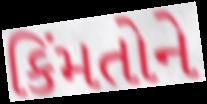
કિંમતોને